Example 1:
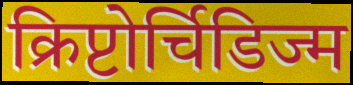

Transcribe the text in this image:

क्रिप्टोर्चिडिज्म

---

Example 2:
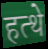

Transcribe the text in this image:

हत्थे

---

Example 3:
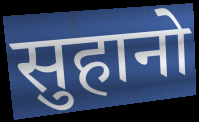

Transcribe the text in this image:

सुहानो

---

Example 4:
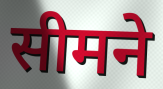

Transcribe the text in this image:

सीमने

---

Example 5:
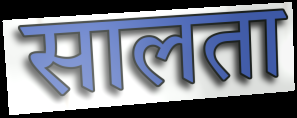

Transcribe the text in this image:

सालता